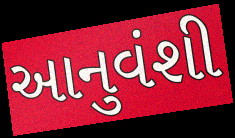
આનુવંશી